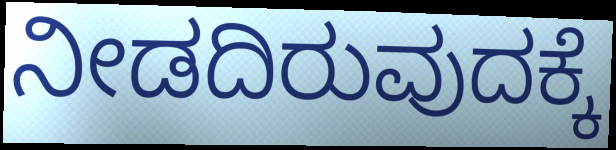
ನೀಡದಿರುವುದಕ್ಕೆ